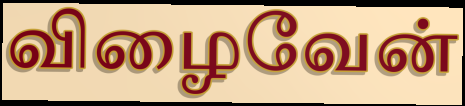
விழைவேன்